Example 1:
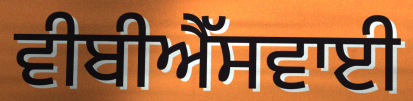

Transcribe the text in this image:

ਵੀਬੀਐੱਸਵਾਈ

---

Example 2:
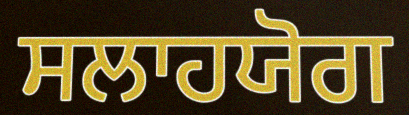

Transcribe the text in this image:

ਸਲਾਹਯੋਗ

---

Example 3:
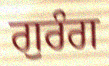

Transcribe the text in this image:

ਗੁਰੰਗ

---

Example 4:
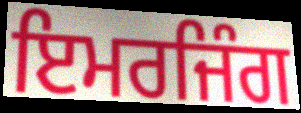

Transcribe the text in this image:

ਇਮਰਜਿੰਗ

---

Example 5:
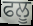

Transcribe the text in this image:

ਫਲੂ